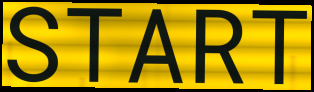
START